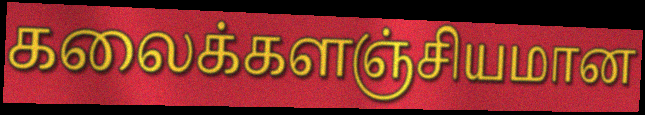
கலைக்களஞ்சியமான